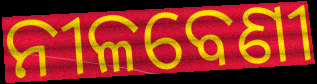
ନୀଳବେଣୀ